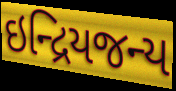
ઇન્દ્રિયજન્ય